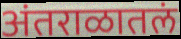
अंतराळातलं